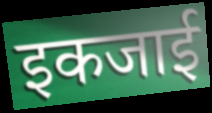
इकजाई